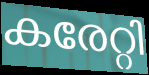
കരേറ്റി